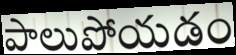
పాలుపోయడం